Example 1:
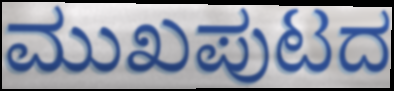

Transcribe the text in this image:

ಮುಖಪುಟದ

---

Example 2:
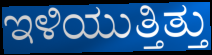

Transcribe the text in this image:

ಇಳಿಯುತ್ತಿತ್ತು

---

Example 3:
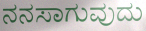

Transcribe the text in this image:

ನನಸಾಗುವುದು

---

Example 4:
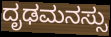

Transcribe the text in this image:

ದೃಢಮನಸ್ಸು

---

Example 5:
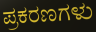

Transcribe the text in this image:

ಪ್ರಕರಣಗಳು